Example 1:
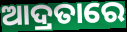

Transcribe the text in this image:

ଆଦ୍ରତାରେ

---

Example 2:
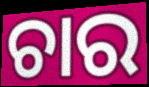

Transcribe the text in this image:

ଚାର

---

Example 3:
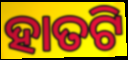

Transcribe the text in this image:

ହାତଟି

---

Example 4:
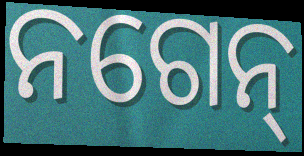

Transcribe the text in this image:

ନଗେନ୍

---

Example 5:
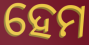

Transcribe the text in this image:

ହେମ